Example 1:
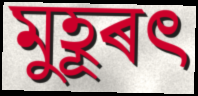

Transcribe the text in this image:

মুহূৰৎ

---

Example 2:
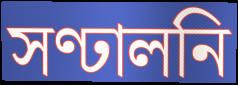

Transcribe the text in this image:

সণ্ঢালনি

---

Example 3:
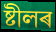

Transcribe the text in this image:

ষ্টীলৰ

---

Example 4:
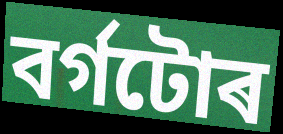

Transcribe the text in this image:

বৰ্গটোৰ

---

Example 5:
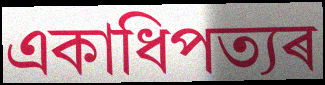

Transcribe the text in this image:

একাধিপত্যৰ